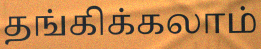
தங்கிக்கலாம்